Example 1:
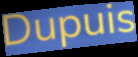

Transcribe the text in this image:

Dupuis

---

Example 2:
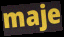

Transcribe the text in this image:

maje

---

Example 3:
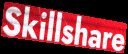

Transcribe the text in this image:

Skillshare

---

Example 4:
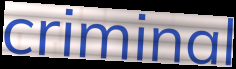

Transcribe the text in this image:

criminal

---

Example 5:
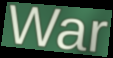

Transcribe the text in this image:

War